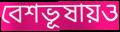
বেশভূষায়ও